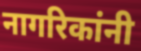
नागरिकांनी